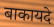
बाकायदे